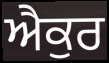
ਐਕੁਰ